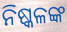
ନିଷ୍କଳଙ୍କ